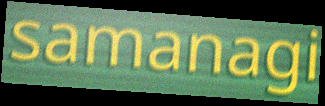
samanagi